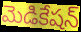
మెడికేషన్